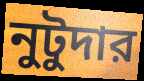
নুটুদার